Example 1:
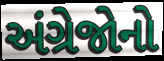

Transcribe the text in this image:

અંગ્રેજોનો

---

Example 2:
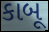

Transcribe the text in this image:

કાબૂ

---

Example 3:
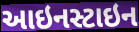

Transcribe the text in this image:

આઇનસ્ટાઇન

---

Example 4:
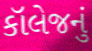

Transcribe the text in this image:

કૉલેજનું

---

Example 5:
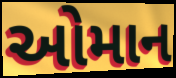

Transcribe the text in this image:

ઓમાન